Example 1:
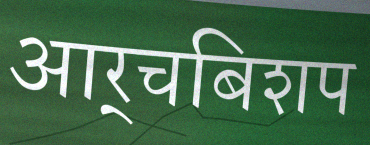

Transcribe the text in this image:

आर्चबिशप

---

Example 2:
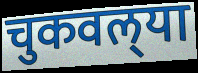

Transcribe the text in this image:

चुकवल्या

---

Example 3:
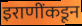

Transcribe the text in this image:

इराणींकडून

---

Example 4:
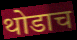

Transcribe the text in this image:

थोडाच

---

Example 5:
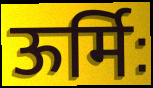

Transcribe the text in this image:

ऊर्मिः